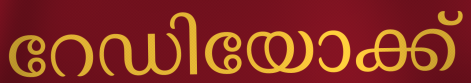
റേഡിയോക്ക്